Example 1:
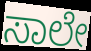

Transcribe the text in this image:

ಸಾಲೇ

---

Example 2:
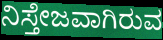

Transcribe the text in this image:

ನಿಸ್ತೇಜವಾಗಿರುವ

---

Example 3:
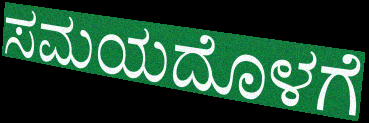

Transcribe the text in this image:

ಸಮಯದೊಳಗೆ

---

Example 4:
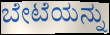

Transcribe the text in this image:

ಬೇಟೆಯನ್ನು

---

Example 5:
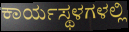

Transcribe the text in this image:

ಕಾರ್ಯಸ್ಥಳಗಳಲ್ಲಿ